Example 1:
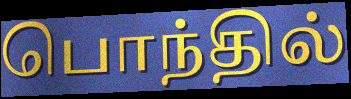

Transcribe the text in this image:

பொந்தில்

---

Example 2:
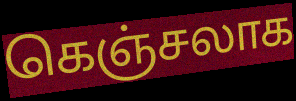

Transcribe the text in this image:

கெஞ்சலாக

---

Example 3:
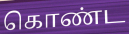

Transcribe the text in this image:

கொண்ட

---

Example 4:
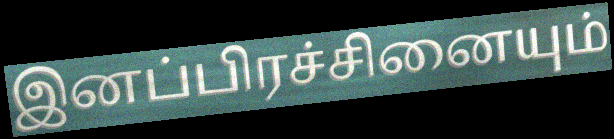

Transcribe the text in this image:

இனப்பிரச்சினையும்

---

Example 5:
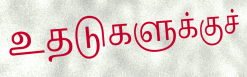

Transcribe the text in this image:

உதடுகளுக்குச்